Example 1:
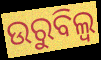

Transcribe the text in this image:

ଉରୁବିଲ୍ୱ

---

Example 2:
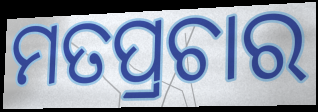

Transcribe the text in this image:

ମତପ୍ରଚାର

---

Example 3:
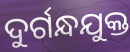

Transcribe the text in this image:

ଦୁର୍ଗନ୍ଧଯୁକ୍ତ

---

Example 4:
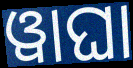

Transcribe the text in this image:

ୱାଘା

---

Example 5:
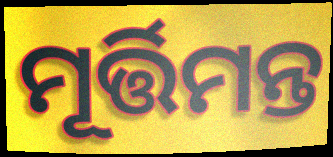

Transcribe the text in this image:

ମୂର୍ତ୍ତିମନ୍ତ